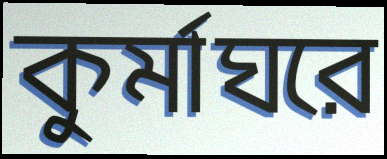
কুর্মাঘরে